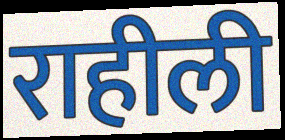
राहीली